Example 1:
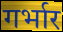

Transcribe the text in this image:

गर्भार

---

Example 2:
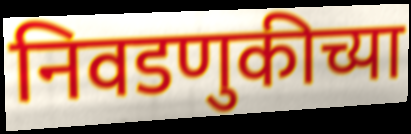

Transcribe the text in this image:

निवडणुकीच्या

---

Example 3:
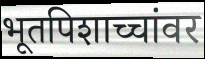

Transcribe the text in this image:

भूतपिशाच्चांवर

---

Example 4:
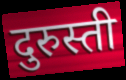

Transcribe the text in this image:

दुरुस्ती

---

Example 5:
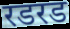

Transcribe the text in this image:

रडरड